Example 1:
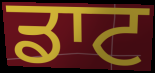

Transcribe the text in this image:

ਡਾਟ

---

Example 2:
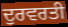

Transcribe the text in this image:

ਦੁਰਵਰਤੀ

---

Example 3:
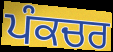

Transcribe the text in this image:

ਪੰਕਚਰ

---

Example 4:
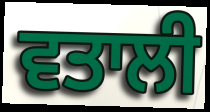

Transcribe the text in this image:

ਵਤਾਲੀ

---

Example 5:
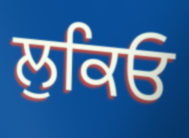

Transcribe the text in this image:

ਲੁਕਿਓ